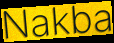
Nakba